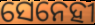
ସେନେହୀ